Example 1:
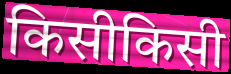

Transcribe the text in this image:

किसीकिसी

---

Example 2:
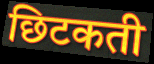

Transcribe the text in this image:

छिटकती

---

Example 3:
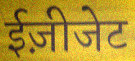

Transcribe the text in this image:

ईज़ीजेट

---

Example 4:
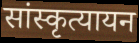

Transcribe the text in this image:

सांस्कृत्यायन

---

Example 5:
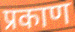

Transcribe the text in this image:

प्रकाण